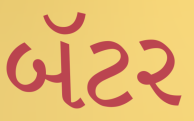
બૅટર